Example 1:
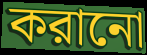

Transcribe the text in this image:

করানো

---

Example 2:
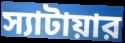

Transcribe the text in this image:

স্যাটায়ার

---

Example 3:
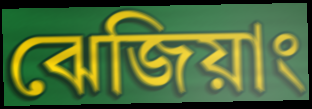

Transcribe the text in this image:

ঝেজিয়াং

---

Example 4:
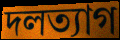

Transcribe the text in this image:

দলত্যাগ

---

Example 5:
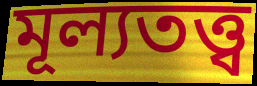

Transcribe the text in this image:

মূল্যতত্ত্ব